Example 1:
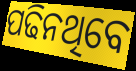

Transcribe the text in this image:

ପଢିନଥିବେ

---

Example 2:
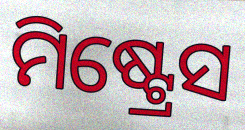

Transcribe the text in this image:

ମିଷ୍ଟ୍ରେସ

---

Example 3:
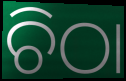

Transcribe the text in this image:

ଚିଠା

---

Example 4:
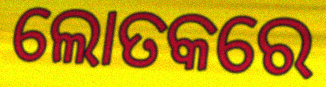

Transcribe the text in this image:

ଲୋତକରେ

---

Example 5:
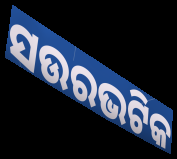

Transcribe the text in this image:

ସଉରଭଟିକ